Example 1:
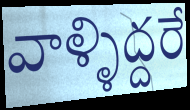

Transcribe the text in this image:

వాళ్ళిద్దరే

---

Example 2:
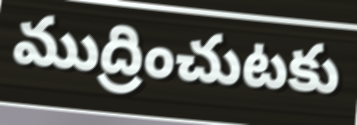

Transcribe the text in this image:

ముద్రించుటకు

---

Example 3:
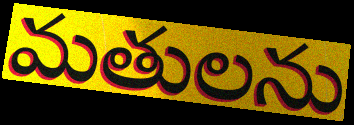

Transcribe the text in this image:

మతులను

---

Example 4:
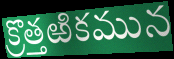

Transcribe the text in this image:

క్రొత్తఱికమున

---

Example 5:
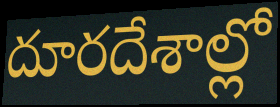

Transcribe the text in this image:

దూరదేశాల్లో